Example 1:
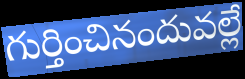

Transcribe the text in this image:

గుర్తించినందువల్లే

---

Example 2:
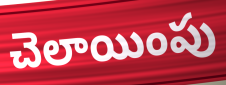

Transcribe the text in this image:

చెలాయింపు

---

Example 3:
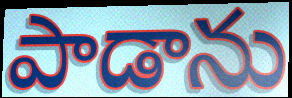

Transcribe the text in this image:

పాడాను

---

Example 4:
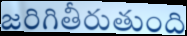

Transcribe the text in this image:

జరిగితీరుతుంది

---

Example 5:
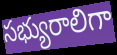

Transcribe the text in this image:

సభ్యురాలిగా